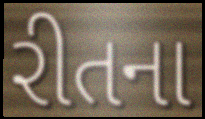
રીતના